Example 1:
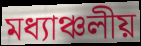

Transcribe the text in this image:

মধ্যাঞ্চলীয়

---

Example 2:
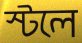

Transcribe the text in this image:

স্টলে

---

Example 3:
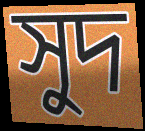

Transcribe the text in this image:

সুদ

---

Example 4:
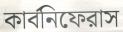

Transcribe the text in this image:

কার্বনিফেরাস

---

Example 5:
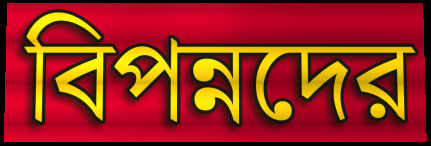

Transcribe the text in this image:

বিপন্নদের